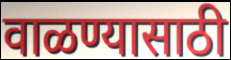
वाळण्यासाठी